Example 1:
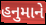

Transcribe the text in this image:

હનુમાને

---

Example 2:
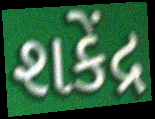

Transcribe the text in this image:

શકેંદ્ર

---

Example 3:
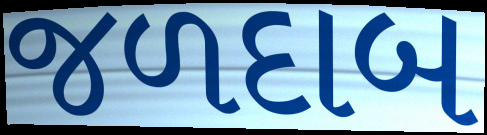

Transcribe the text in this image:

જળદાબ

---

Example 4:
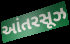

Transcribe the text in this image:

આંતરસૂઝ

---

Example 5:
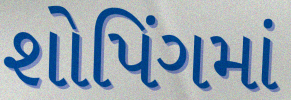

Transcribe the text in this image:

શોપિંગમાં